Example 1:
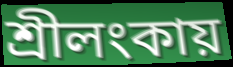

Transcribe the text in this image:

শ্রীলংকায়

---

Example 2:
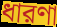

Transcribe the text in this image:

ধারণা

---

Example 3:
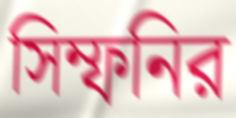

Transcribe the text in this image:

সিম্ফনির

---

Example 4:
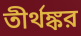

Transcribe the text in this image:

তীর্থঙ্কর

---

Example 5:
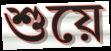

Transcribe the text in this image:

শুয়ে